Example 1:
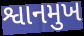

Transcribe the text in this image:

શ્વાનમુખ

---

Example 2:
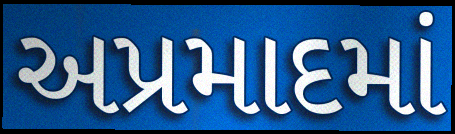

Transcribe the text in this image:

અપ્રમાદમાં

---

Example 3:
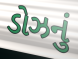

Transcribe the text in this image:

ડોઝનું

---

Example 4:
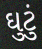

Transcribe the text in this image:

ઘુટું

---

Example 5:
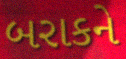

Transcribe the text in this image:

બરાકને